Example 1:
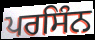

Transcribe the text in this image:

ਪਰਸਿੰਨ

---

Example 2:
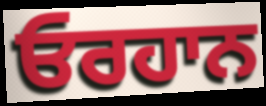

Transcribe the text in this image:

ਓਰਹਾਨ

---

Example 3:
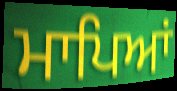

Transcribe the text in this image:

ਮਾਪਿਆਂ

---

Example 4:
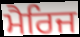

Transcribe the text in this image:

ਮੈਰਿਜ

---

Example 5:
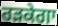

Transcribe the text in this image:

ਰੜਕੇਗਾ